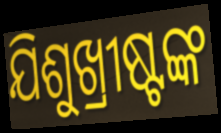
ଯିଶୁଖ୍ରୀଷ୍ଟଙ୍କ